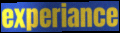
experiance